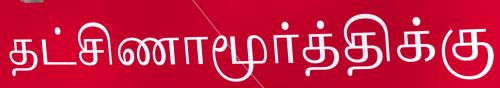
தட்சிணாமூர்த்திக்கு